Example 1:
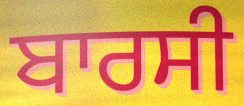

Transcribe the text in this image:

ਬਾਰਸੀ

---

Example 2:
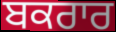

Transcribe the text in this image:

ਬਕਰਾਰ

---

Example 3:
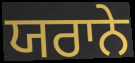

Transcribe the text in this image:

ਯਰਾਨੇ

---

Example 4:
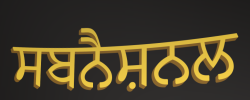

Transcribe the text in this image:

ਸਬਨੈਸ਼ਨਲ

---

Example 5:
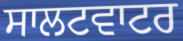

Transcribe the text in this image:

ਸਾਲਟਵਾਟਰ